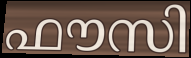
ഫൗസി